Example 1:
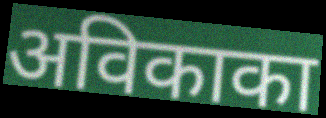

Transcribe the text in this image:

अविकाका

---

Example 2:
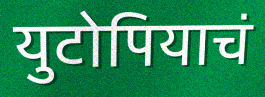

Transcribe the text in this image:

युटोपियाचं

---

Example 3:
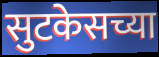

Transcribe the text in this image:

सुटकेसच्या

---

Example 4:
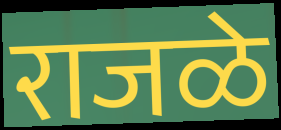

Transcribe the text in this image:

राजळे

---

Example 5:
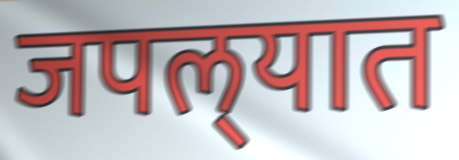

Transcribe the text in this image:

जपल्यात